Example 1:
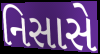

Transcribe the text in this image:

નિસાસે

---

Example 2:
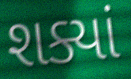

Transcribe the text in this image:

શક્યાં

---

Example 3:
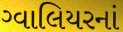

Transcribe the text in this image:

ગ્વાલિયરનાં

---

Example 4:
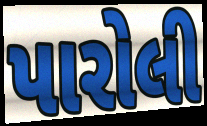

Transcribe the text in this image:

પારોલી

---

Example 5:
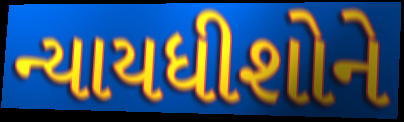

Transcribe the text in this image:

ન્યાયધીશોને